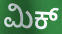
ಮಿಕ್